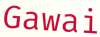
Gawai